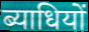
ब्याधियों